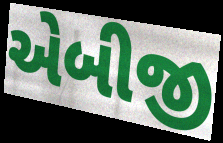
એબીજી